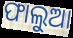
ଫାଲୁଆ